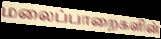
மலைப்பாறைகளின்